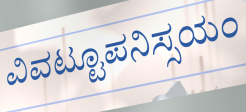
ವಿವಟ್ಟೂಪನಿಸ್ಸಯಂ